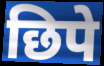
छिपे